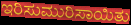
ಇರಿಸುಮುರಿಸಾಯಿತು